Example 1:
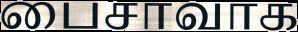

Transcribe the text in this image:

பைசாவாக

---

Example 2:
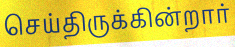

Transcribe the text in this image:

செய்திருக்கின்றார்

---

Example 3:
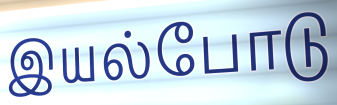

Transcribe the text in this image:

இயல்போடு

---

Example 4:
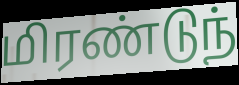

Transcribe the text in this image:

மிரண்டுந்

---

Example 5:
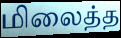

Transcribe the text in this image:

மிலைத்த